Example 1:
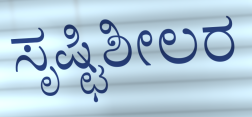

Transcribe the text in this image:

ಸೃಷ್ಟಿಶೀಲರ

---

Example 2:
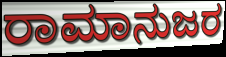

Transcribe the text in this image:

ರಾಮಾನುಜರ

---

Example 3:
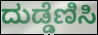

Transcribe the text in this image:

ದುಡ್ಡೆಣಿಸಿ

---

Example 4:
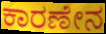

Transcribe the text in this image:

ಕಾರಣೇನ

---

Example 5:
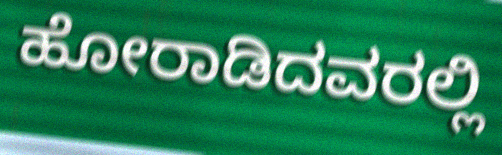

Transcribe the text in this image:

ಹೋರಾಡಿದವರಲ್ಲಿ